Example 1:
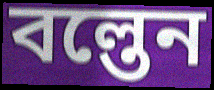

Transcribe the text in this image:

বল্তেন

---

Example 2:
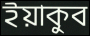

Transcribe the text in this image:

ইয়াকুব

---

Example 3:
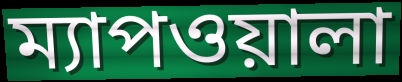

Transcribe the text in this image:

ম্যাপওয়ালা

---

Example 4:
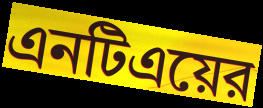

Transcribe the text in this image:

এনটিএয়ের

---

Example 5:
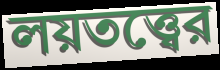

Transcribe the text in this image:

লয়তত্ত্বের